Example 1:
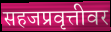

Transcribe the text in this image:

सहजप्रवृत्तीवर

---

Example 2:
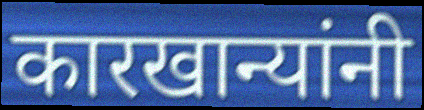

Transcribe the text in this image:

कारखान्यांनी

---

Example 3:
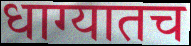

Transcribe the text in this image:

धाग्यातच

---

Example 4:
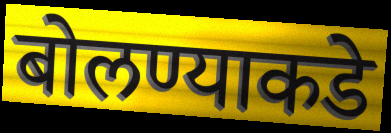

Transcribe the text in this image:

बोलण्याकडे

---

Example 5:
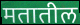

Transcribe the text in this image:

मतातील